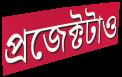
প্রজেক্টটাও